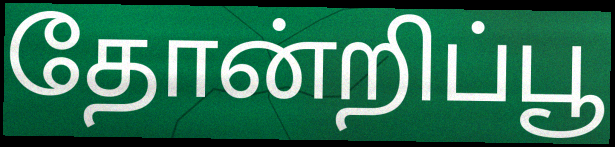
தோன்றிப்பூ